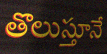
తొలుస్తూనే